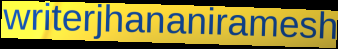
writerjhananiramesh